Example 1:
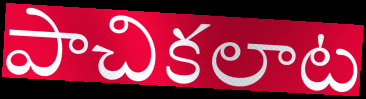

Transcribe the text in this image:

పాచికలాట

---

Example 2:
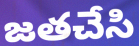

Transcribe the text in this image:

జతచేసి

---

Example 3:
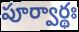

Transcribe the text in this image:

పూర్వార్థః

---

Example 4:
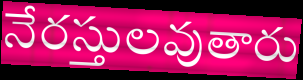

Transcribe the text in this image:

నేరస్తులవుతారు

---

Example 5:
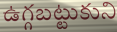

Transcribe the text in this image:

ఉగ్గబట్టుకుని